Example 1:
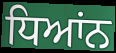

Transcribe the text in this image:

ਧਿਆਂਨ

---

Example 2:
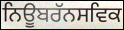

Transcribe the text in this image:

ਨਿਊਬਰੱਨਸਵਿਕ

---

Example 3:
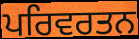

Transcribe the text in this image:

ਪਰਿਵਰਤਨ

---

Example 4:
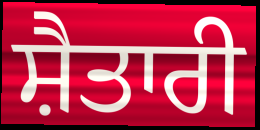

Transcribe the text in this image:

ਸ਼ੈਤਾਰੀ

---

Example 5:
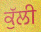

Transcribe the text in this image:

ਕੁੱਲੀ